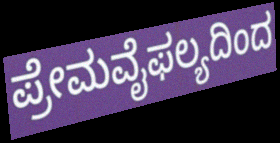
ಪ್ರೇಮವೈಫಲ್ಯದಿಂದ